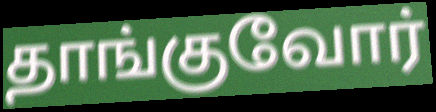
தாங்குவோர்